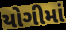
યોગીમાં